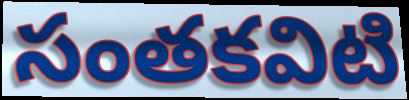
సంతకవిటి